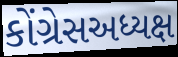
કોંગ્રેસઅધ્યક્ષ